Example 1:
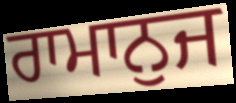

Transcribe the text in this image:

ਰਾਮਾਨੁਜ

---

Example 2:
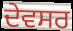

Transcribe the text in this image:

ਦੇਵਸਰ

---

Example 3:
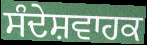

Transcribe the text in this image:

ਸੰਦੇਸ਼ਵਾਹਕ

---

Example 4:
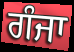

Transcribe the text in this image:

ਗੰਜਾ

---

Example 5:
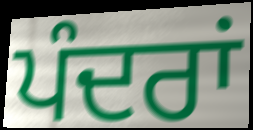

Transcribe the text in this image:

ਪੰਦਰਾਂ